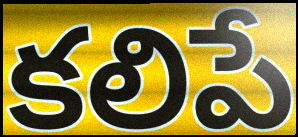
కలిపే